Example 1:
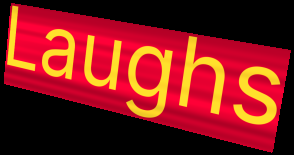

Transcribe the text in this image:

Laughs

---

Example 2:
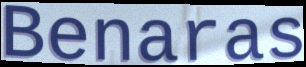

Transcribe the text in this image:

Benaras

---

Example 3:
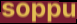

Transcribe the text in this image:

soppu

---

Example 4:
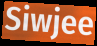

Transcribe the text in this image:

Siwjee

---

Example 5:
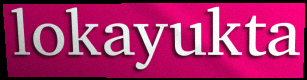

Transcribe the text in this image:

lokayukta